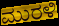
ಮುರಳಿ